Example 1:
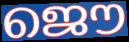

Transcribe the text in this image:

ജൌ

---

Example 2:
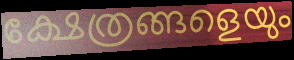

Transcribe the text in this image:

ക്ഷേത്രങ്ങളെയും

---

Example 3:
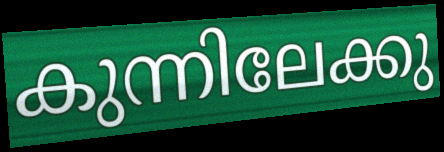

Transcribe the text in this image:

കുന്നിലേക്കു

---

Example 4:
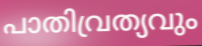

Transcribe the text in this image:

പാതിവ്രത്യവും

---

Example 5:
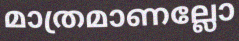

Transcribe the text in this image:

മാത്രമാണല്ലോ